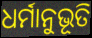
ଧର୍ମାନୁଭୂତି